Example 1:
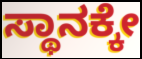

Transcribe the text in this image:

ಸ್ಥಾನಕ್ಕೇ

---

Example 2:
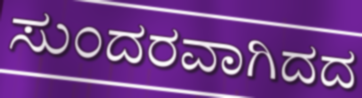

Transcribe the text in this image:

ಸುಂದರವಾಗಿದದ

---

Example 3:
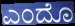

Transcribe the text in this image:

ಎಂದೊ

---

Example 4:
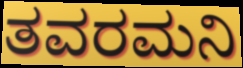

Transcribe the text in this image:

ತವರಮನಿ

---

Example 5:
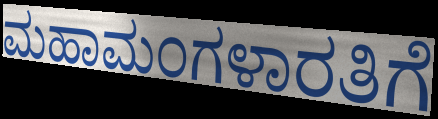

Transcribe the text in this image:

ಮಹಾಮಂಗಳಾರತಿಗೆ